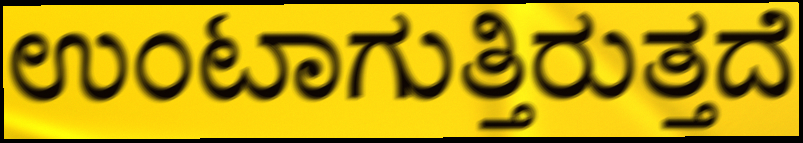
ಉಂಟಾಗುತ್ತಿರುತ್ತದೆ